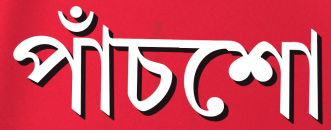
পাঁচশো